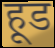
हूड